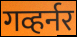
गव्हर्नर